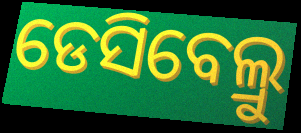
ଡେସିବେଲ୍ରୁ